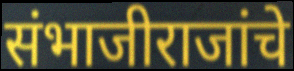
संभाजीराजांचे